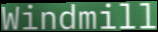
Windmill